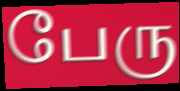
பேரு